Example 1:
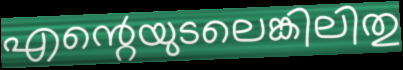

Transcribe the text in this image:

എന്റെയുടലെങ്കിലിതു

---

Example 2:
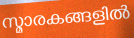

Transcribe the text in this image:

സ്മാരകങ്ങളിൽ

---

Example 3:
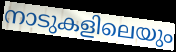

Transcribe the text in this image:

നാടുകളിലെയും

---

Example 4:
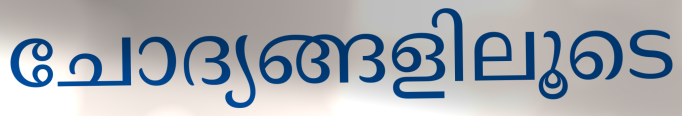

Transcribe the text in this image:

ചോദ്യങ്ങളിലൂടെ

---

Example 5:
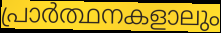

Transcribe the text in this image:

പ്രാർത്ഥനകളാലും